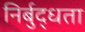
निर्बुद्धता